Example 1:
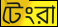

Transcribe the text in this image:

টেংরা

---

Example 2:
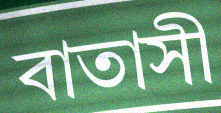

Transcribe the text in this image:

বাতাসী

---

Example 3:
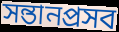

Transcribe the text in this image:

সন্তানপ্রসব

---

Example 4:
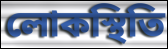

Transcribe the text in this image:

লোকস্থিতি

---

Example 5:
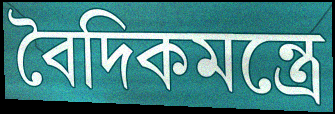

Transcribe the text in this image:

বৈদিকমন্ত্রে